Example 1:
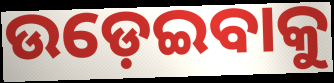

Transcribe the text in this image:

ଉଡ଼େଇବାକୁ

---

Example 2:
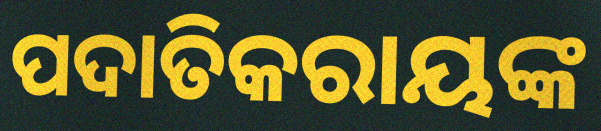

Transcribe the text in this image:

ପଦାତିକରାୟଙ୍କ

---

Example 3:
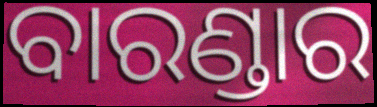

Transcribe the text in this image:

ବାରଣ୍ଡାର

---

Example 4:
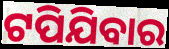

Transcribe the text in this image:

ଟପିଯିବାର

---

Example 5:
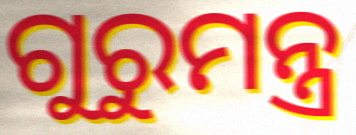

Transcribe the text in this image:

ଗୁରୁମନ୍ତ୍ର